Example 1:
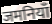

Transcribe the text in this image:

जमनियाँ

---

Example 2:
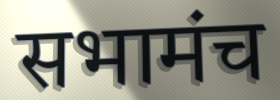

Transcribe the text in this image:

सभामंच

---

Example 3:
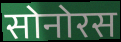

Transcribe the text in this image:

सोनोरस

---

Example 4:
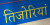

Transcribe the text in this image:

तिजोरियां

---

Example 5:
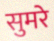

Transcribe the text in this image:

सुमरे